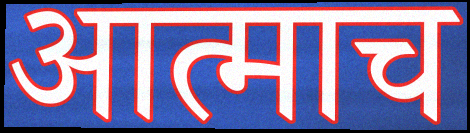
आत्माच